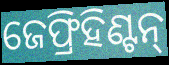
ଜେଫ୍ରିହିଣ୍ଟନ୍